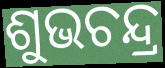
ଶୁଭଚନ୍ଦ୍ର